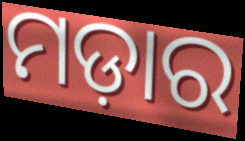
ମଡ଼ାର